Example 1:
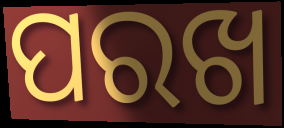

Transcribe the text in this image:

ପରଖ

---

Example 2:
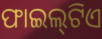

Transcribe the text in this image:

ଫାଇଲ୍‌ଟିଏ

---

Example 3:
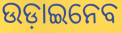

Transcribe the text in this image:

ଉଡ଼ାଇନେବ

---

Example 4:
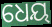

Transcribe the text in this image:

ଧେୟ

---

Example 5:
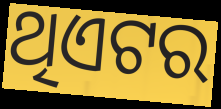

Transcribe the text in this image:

ଥିଏଟର